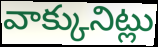
వాక్కునిట్లు